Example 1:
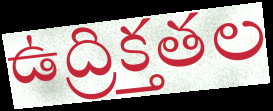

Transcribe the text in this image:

ఉద్రిక్తతల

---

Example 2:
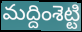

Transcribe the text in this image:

మద్దింశెట్టి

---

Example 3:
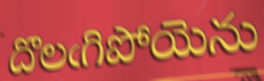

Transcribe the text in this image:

దొలఁగిపోయెను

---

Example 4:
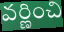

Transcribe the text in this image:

వర్ణించి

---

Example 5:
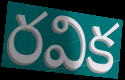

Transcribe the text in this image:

రవిక